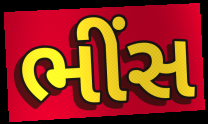
ભીંસ